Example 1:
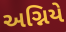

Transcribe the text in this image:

અગ્નિયે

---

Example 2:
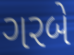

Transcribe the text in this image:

ગરબે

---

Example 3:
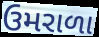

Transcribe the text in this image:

ઉમરાળા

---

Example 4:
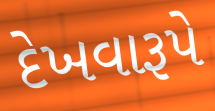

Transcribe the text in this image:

દેખવારૂપે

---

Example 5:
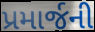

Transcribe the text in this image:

પ્રમાર્જની